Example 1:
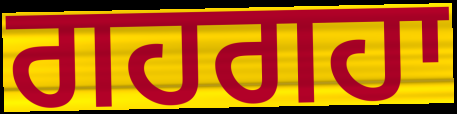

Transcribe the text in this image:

ਗਹਗਹਾ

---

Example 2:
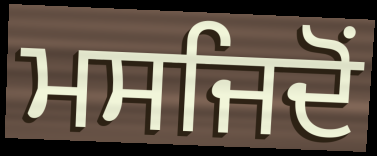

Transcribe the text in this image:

ਮਸਜਿਦੋਂ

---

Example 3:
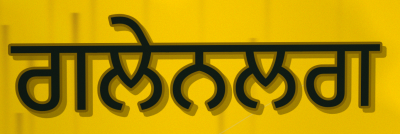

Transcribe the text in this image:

ਗਲੇਨਲਗ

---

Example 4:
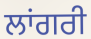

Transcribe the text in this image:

ਲਾਂਗਰੀ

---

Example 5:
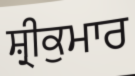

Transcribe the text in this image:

ਸ਼੍ਰੀਕੁਮਾਰ